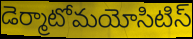
డెర్మాటోమయోసిటిస్